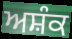
ਅਸ਼ੰਕ